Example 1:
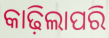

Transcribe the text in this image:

କାଢ଼ିଲାପରି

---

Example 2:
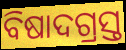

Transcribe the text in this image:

ବିଷାଦଗ୍ରସ୍ତ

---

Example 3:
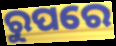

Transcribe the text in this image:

ରୁପରେ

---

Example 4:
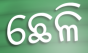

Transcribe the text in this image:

ଛେଳି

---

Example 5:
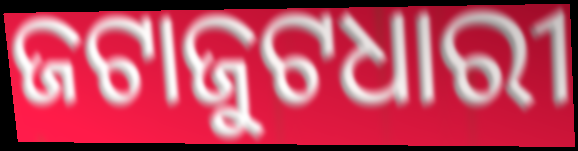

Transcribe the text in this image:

ଜଟାଜୁଟଧାରୀ